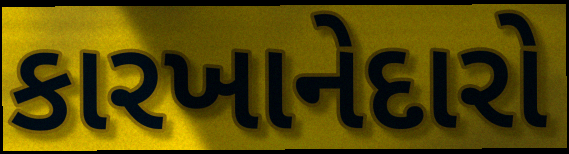
કારખાનેદારો